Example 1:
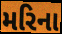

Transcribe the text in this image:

મરિના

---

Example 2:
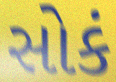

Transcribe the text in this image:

સોકં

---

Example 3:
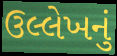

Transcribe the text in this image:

ઉલ્લેખનું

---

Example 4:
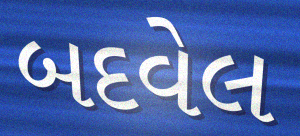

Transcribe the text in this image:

બદવેલ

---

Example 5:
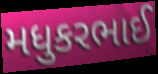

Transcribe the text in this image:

મધુકરભાઈ